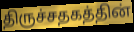
திருச்சதகத்தின்